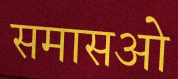
समासओ